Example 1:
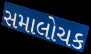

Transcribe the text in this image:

સમાલોચક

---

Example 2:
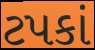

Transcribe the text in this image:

ટપકાં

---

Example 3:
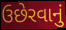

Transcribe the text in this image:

ઉછેરવાનું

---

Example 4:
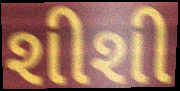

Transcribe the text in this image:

શીશી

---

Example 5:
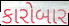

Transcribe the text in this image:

કારોબાર